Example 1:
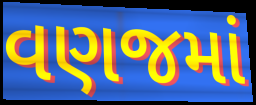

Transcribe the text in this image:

વણજમાં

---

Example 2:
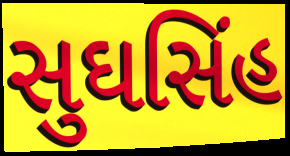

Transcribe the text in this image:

સુઘસિંહ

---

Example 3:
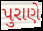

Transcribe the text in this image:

પુરાણે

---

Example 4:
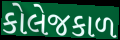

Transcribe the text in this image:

કોલેજકાળ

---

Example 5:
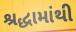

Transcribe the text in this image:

શ્રદ્ધામાંથી